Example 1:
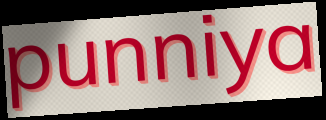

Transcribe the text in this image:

punniya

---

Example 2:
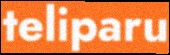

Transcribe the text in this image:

teliparu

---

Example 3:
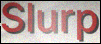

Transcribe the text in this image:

Slurp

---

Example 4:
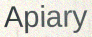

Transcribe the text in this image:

Apiary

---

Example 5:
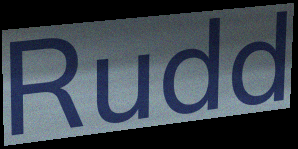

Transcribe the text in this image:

Rudd